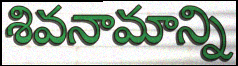
శివనామాన్ని